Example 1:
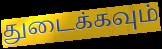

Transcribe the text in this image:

துடைக்கவும்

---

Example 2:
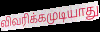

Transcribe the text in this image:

விவரிக்கமுடியாது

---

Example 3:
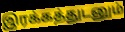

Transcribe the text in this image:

இரக்கத்துடனும்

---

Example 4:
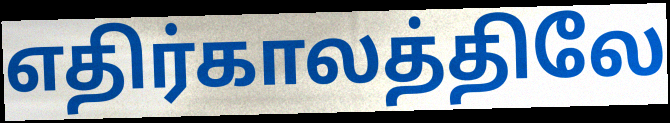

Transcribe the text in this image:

எதிர்காலத்திலே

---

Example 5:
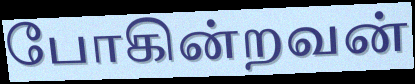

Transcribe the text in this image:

போகின்றவன்